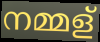
നമ്മള്